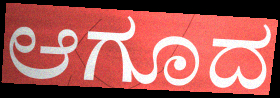
ಆಗೂದ